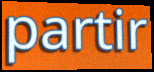
partir